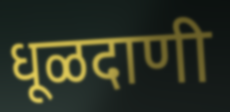
धूळदाणी